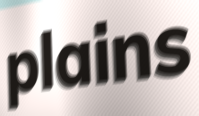
plains